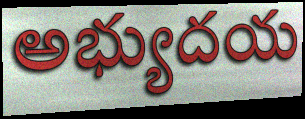
అభ్యుదయ